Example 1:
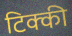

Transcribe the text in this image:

टिक्‍की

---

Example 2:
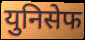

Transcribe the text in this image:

युनिसेफ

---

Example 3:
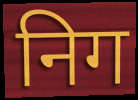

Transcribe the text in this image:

निग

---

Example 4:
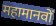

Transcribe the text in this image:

महामानवों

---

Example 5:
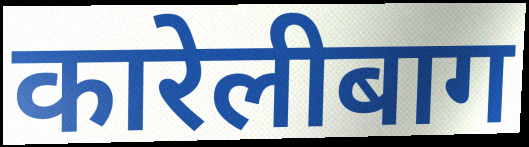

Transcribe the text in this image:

कारेलीबाग